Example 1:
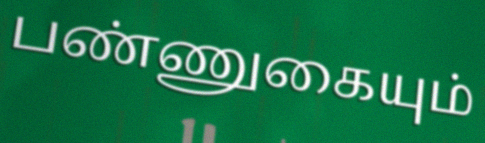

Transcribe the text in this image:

பண்ணுகையும்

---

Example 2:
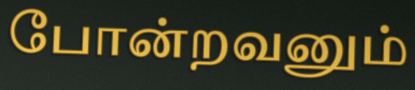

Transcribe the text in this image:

போன்றவனும்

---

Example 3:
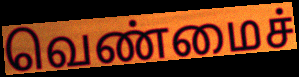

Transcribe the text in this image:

வெண்மைச்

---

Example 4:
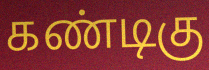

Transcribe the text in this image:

கண்டிகு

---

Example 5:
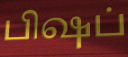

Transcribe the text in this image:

பிஷப்